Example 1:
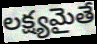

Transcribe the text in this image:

లక్ష్యమైతే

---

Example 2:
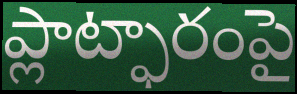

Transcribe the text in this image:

ప్లాట్ఫారంపై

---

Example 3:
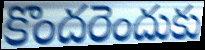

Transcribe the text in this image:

కొందరెందుకు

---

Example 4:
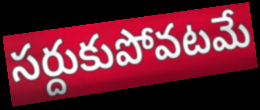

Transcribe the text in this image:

సర్దుకుపోవటమే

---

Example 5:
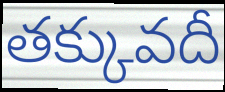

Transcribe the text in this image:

తక్కువదీ